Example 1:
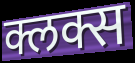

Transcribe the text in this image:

क्लक्स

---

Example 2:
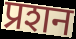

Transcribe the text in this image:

प्रशन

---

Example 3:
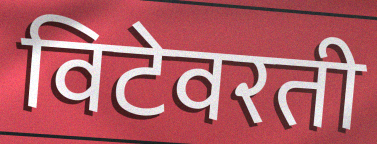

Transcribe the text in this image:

विटेवरती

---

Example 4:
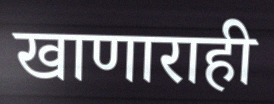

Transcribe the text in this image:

खाणाराही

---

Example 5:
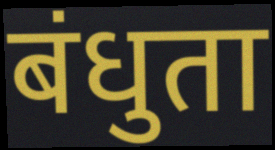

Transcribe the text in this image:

बंधुता